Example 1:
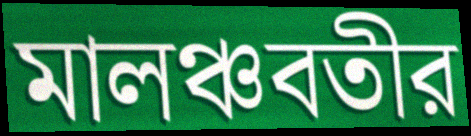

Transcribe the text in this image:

মালঞ্চবতীর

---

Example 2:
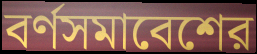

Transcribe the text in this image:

বর্ণসমাবেশের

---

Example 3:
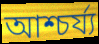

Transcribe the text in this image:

আশ্চর্য্য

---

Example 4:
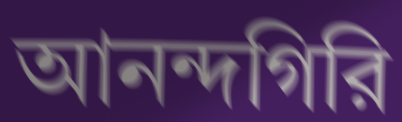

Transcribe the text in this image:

আনন্দগিরি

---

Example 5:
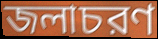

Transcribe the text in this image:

জলাচরণ